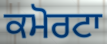
ਕਮੋਰਟਾ